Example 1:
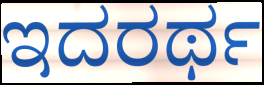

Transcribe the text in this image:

ಇದರರ್ಥ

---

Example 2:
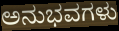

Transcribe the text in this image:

ಅನುಭವಗಳು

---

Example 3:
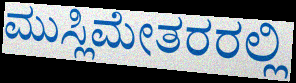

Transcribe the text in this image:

ಮುಸ್ಲಿಮೇತರರಲ್ಲಿ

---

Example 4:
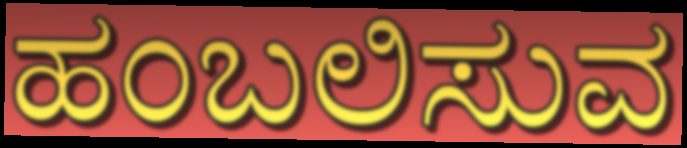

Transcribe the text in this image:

ಹಂಬಲಿಸುವ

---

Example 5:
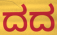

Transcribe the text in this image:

ದದ